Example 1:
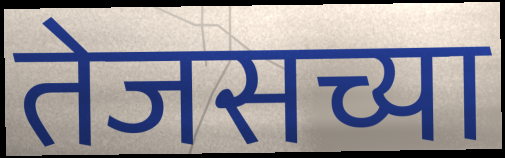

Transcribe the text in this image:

तेजसच्या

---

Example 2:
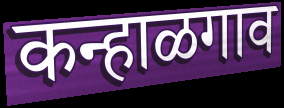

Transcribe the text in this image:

कन्हाळगाव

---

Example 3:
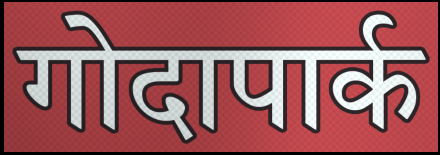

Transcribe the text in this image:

गोदापार्क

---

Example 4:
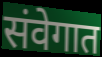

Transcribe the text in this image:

संवेगात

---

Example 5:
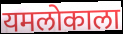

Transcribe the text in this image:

यमलोकाला